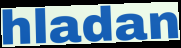
hladan